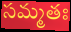
సమ్మతః